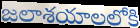
జలాశయాలలోకి